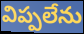
విప్పలేను